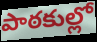
పాఠకుల్లో